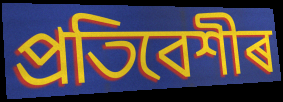
প্ৰতিবেশীৰ